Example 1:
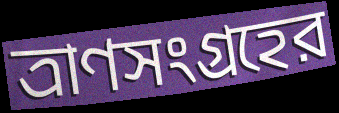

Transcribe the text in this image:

ত্রাণসংগ্রহের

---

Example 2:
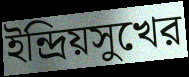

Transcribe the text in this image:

ইন্দ্রিয়সুখের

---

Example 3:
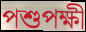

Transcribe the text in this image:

পশুপক্ষী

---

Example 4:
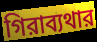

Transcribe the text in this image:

গিরাব্যথার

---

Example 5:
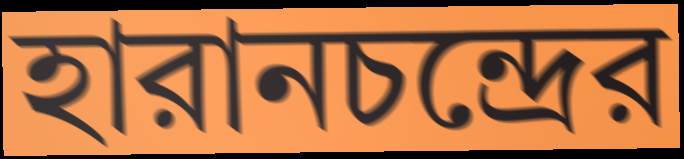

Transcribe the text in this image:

হারানচন্দ্রের